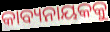
କାବ୍ୟନାୟକକୁ